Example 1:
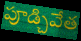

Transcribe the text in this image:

పూడ్చివేత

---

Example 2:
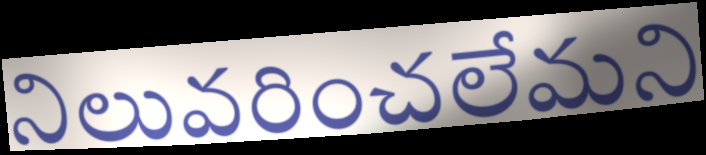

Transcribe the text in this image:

నిలువరించలేమని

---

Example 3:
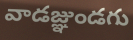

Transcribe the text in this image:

వాడజ్ఞుండగు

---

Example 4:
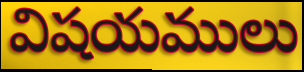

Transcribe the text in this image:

విషయములు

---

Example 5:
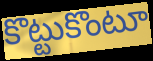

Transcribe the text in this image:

కొట్టుకొంటూ